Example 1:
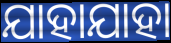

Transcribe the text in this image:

ଯାହାଯାହା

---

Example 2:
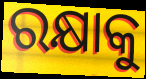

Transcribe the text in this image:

ରକ୍ଷାକୁ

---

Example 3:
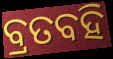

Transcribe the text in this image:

ବ୍ରତବହି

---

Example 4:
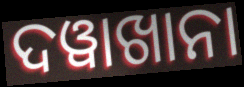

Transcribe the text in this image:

ଦୱାଖାନା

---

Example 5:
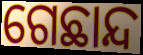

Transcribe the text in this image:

ଗେଛାନ୍ଦ